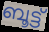
ബൂട്ട്